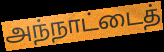
அந்நாட்டைத்